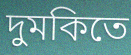
দুমকিতে